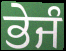
ਭੇਜੰ